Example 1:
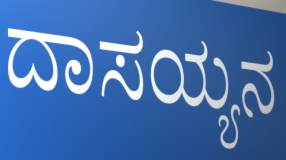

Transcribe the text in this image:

ದಾಸಯ್ಯನ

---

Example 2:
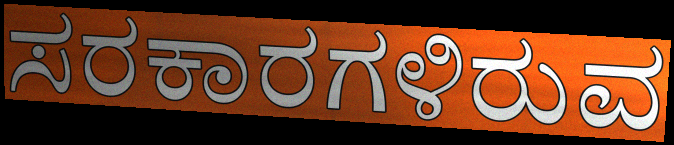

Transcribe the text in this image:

ಸರಕಾರಗಳಿರುವ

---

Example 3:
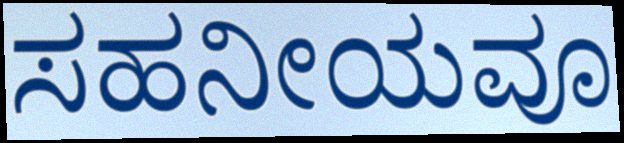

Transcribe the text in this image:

ಸಹನೀಯವೂ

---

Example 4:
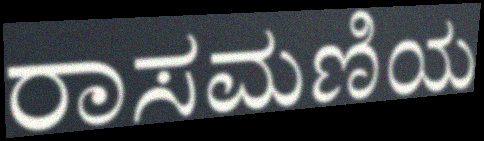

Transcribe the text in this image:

ರಾಸಮಣಿಯ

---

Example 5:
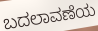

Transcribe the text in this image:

ಬದಲಾವಣೆಯ